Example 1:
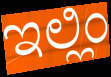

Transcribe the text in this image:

ಇಲ್ಲಿಂ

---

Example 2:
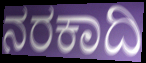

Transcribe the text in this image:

ನರಕಾದಿ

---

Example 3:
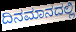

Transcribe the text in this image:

ದಿನಮಾನದಲ್ಲಿ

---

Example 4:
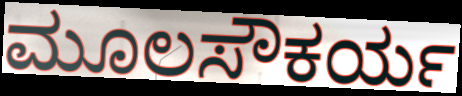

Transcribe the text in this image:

ಮೂಲಸೌಕರ್ಯ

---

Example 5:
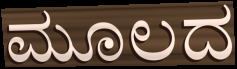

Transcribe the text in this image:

ಮೂಲದ